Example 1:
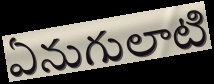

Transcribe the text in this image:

ఏనుగులాటి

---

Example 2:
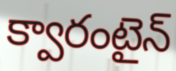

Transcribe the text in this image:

క్వారంటైన్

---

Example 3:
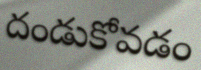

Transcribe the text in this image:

దండుకోవడం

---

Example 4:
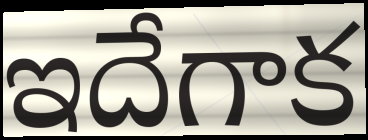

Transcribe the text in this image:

ఇదేగాక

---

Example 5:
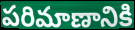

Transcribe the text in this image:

పరిమాణానికి